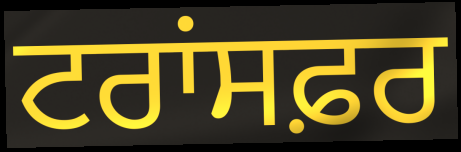
ਟਰਾਂਸਫ਼ਰ